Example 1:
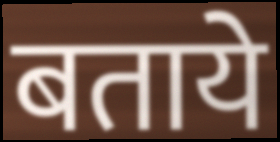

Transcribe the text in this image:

बताये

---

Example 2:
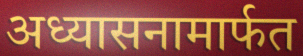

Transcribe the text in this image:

अध्यासनामार्फत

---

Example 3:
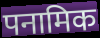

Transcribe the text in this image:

पनामिक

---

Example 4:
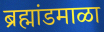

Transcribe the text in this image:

ब्रह्मांडमाळा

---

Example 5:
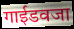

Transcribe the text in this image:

गाईडवजा